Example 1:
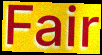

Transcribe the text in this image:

Fair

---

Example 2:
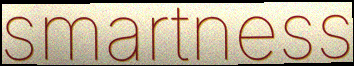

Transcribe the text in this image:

smartness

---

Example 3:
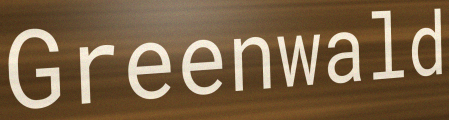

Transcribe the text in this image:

Greenwald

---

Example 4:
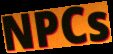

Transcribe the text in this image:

NPCs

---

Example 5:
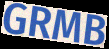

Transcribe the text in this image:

GRMB